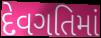
દેવગતિમાં